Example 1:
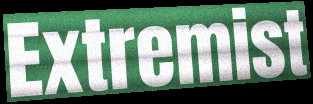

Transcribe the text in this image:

Extremist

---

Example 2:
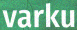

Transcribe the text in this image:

varku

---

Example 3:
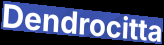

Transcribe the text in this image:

Dendrocitta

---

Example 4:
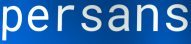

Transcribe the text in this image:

persans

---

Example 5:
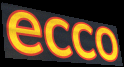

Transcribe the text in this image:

ecco